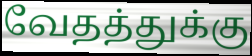
வேதத்துக்கு